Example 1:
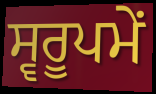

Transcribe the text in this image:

ਸ੍ਵਰੂਪਮੇਂ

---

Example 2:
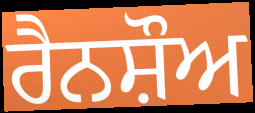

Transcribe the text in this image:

ਰੈਨਸ਼ੌਅ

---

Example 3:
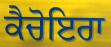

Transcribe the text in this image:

ਕੈਚੋਇਰਾ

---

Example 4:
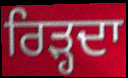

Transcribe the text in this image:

ਰਿੜ੍ਹਦਾ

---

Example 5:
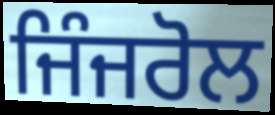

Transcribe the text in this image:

ਜਿੰਜਰੋਲ